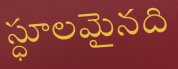
స్ధూలమైనది